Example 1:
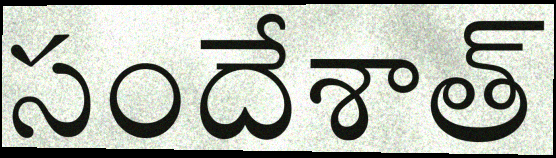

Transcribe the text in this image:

సందేశాత్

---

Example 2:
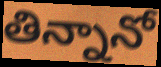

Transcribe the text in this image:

తిన్నానో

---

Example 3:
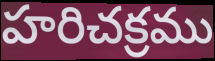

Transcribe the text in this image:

హరిచక్రము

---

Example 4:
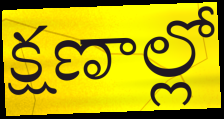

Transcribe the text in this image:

క్షణాల్లో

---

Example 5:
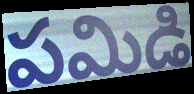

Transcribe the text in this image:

పమిడి